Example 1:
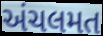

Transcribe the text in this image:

અંચલમત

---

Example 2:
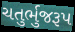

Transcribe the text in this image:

ચતુર્ભુજરૂપ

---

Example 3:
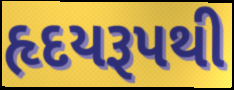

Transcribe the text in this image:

હૃદયરૂપથી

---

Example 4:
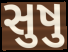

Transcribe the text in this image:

સુષુ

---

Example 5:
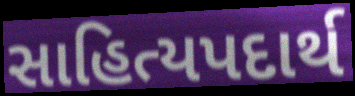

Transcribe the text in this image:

સાહિત્યપદાર્થ